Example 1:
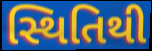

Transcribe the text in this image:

સ્થિતિથી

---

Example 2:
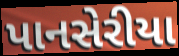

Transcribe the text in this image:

પાનસેરીયા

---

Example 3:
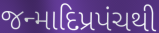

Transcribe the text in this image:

જન્માદિપ્રપંચથી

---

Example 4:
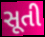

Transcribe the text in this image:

સૂતી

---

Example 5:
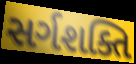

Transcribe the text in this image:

સર્ગશક્તિ